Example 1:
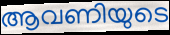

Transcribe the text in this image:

ആവണിയുടെ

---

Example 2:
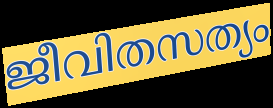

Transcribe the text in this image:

ജീവിതസത്യം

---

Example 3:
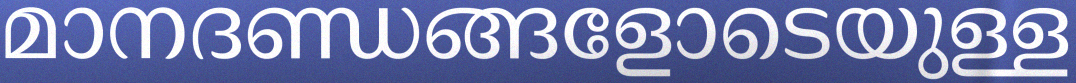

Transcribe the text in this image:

മാനദണ്ഡങ്ങളോടെയുള്ള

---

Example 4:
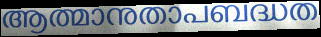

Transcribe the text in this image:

ആത്മാനുതാപബദ്ധത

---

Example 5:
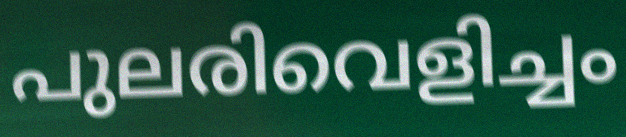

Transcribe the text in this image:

പുലരിവെളിച്ചം